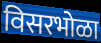
विसरभोळा